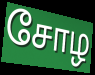
சோழ